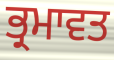
ਭ੍ਰਮਾਵਤ